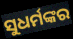
ସୁଧର୍ମଙ୍କର